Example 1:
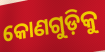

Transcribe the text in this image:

କୋଣଗୁଡ଼ିକୁ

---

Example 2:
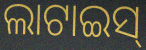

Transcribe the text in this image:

ଲାଟାଇସ୍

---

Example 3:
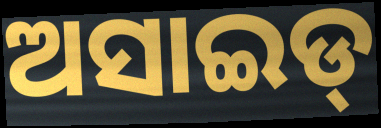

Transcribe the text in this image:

ଅସାଇଡ୍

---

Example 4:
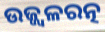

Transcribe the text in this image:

ଉଜ୍ଜ୍ୱଳରତ୍ନ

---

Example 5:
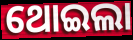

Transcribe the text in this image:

ଥୋଇଲା